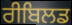
ਰੀਬਿਲਡ